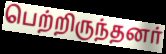
பெற்றிருந்தனர்